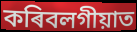
কৰিবলগীয়াত